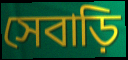
সেবাড়ি